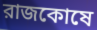
রাজকোষে